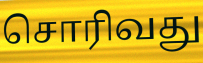
சொரிவது